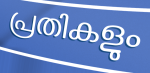
പ്രതികളും